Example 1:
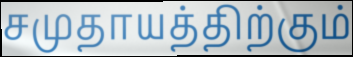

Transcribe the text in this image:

சமுதாயத்திற்கும்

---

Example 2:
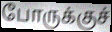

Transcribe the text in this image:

போருக்குச்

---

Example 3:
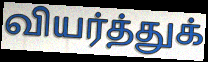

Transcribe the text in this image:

வியர்த்துக்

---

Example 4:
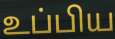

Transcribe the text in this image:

உப்பிய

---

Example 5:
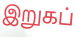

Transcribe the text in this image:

இறுகப்